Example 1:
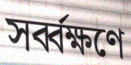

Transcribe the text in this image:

সর্ব্বক্ষণে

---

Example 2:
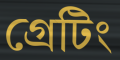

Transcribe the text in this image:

গ্রেটিং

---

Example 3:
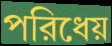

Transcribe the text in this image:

পরিধেয়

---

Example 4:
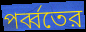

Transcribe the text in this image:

পর্ব্বতের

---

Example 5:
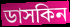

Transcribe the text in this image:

ডাসকিন